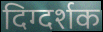
दिग्दर्शक